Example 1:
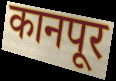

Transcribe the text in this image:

कानपूर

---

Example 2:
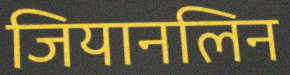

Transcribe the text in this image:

जियानलिन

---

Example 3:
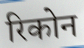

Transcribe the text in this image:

रिकोन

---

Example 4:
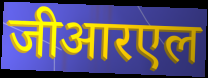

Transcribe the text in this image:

जीआरएल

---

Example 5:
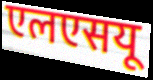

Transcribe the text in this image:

एलएसयू